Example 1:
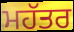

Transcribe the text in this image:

ਮਹੱਤਰ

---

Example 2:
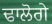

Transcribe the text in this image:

ਢਾਲੋਗੇ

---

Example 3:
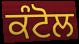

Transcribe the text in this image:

ਕੰਟੋਲ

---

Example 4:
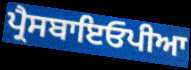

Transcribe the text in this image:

ਪ੍ਰੈਸਬਾਇਓਪੀਆ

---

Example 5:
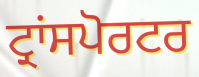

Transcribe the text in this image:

ਟ੍ਰਾਂਸਪੋਰਟਰ